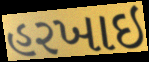
હરખાઇ